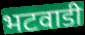
भटवाडी